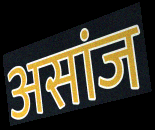
असांज